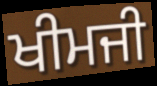
ਖੀਮਜੀ